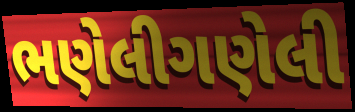
ભણેલીગણેલી